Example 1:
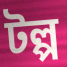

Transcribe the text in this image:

টল্প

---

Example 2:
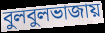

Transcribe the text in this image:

বুলবুলভাজায়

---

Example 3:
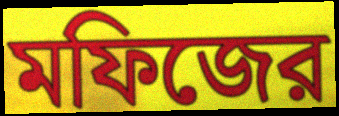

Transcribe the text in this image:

মফিজের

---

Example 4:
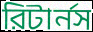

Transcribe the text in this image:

রিটার্নস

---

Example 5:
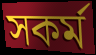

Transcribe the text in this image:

সকর্ম